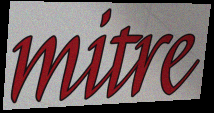
mitre